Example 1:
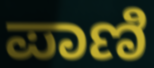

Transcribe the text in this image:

ಪಾಣಿ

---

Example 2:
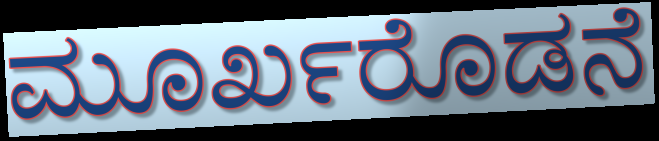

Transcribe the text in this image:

ಮೂರ್ಖರೊಡನೆ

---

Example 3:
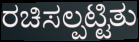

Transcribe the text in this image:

ರಚಿಸಲ್ಪಟ್ಟಿತು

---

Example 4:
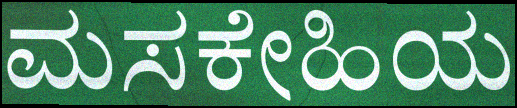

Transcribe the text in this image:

ಮಸಕೇಹಿಯ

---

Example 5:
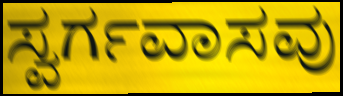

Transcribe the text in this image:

ಸ್ವರ್ಗವಾಸವು